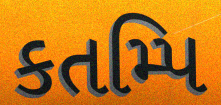
કતમ્પિ